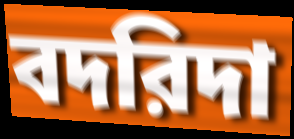
বদরিদা